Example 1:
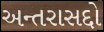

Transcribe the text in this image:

અન્તરાસદ્દો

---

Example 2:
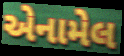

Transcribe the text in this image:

એનામેલ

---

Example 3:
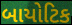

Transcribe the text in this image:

બાયોટિક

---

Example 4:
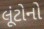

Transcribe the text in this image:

લૂંટોનો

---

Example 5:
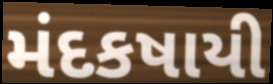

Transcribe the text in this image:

મંદકષાયી